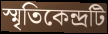
স্মৃতিকেন্দ্রটি